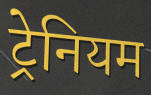
ट्रेनियम